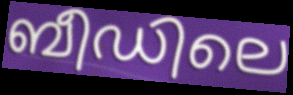
ബീഡിലെ